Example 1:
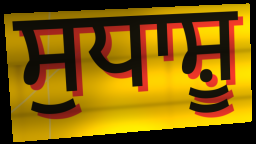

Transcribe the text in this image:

ਸੁਧਾਸ਼ੂ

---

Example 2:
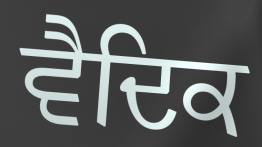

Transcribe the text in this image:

ਵੈਦਿਕ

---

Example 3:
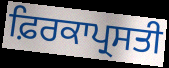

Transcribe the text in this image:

ਫ਼ਿਰਕਾਪ੍ਰਸਤੀ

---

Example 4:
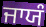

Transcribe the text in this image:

ਜਾਯੰ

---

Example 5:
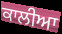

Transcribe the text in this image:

ਕਾਲੀਆ